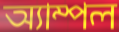
অ্যাম্পল